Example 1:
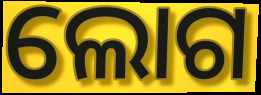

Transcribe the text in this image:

ଲୋଗ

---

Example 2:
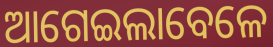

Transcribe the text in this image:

ଆଗେଇଲାବେଳେ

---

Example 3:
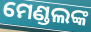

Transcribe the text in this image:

ମେଣ୍ଡଲଙ୍କ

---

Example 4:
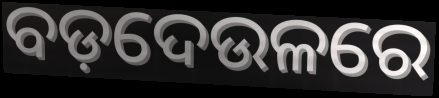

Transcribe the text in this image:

ବଡ଼ଦେଉଳରେ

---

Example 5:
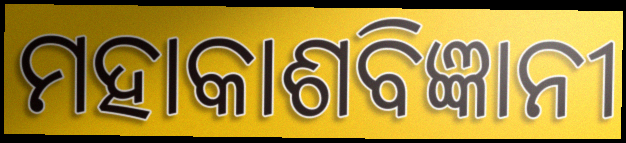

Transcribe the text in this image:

ମହାକାଶବିଜ୍ଞାନୀ